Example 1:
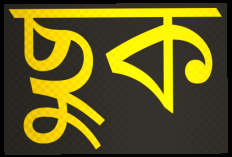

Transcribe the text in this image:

ছুক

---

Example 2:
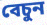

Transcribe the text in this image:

বেচুন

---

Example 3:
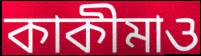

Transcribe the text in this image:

কাকীমাও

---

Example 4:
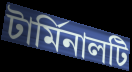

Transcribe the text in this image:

টার্মিনালটি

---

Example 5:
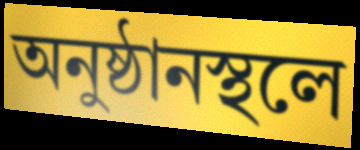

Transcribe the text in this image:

অনুষ্ঠানস্থলে